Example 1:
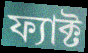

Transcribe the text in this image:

ফ্যাক্ট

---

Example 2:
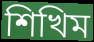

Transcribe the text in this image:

শিখিম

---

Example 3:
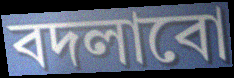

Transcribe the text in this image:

বদলাবো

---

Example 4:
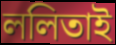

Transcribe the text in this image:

ললিতাই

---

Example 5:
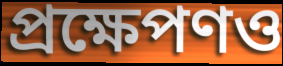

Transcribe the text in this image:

প্রক্ষেপণও